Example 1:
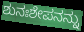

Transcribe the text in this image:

ಶುನಃಶೇಪನನ್ನು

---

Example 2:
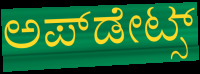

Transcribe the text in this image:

ಅಪ್‌ಡೇಟ್ಸ್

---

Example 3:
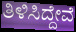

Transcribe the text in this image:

ತಿಳಿಸಿದ್ದೇವೆ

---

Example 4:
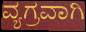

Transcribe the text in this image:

ವ್ಯಗ್ರವಾಗಿ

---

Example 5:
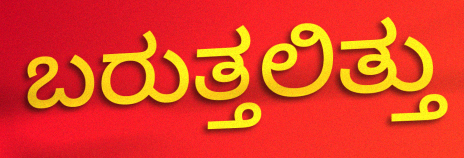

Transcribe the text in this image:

ಬರುತ್ತಲಿತ್ತು